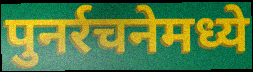
पुनर्रचनेमध्ये